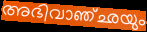
അഭിവാഞ്ഛയും